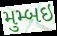
મુમ્બઇ